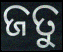
ଜତୁ